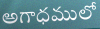
అగాధములో